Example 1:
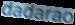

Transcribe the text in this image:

dadarao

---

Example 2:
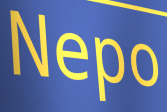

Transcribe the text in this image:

Nepo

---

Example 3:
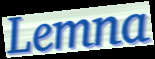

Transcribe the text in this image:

Lemna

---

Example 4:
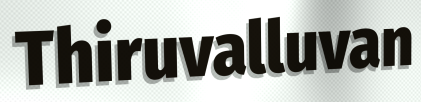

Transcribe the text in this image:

Thiruvalluvan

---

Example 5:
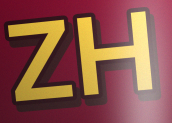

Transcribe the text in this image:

ZH